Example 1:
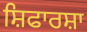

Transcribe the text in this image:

ਸ਼ਿਫਾਰਸ਼ਾ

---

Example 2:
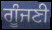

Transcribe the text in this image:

ਗੂੰਜਣੀ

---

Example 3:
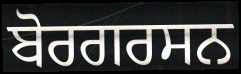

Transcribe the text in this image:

ਬੋਰਗਰਸਨ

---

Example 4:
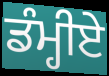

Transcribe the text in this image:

ਡੰਮ੍ਹੀਏ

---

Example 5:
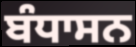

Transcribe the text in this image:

ਬੰਧਾਸਨ